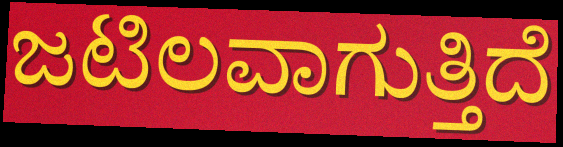
ಜಟಿಲವಾಗುತ್ತಿದೆ